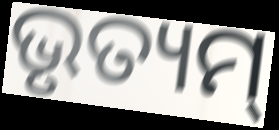
ଭୃତ୍ୟମ୍